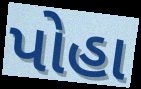
પોહા